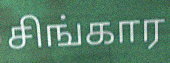
சிங்கார